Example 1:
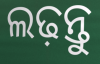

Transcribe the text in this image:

ଲଢ଼ନ୍ତୁ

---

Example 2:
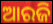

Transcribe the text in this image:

ଆରଜି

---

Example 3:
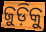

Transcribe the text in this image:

ଜୁଡ଼ିକୁ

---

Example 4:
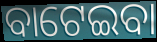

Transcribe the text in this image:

ବାଟେଇବା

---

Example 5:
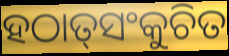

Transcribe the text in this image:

ହଠାତ୍‌ସଂକୁଚିତ